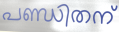
പണ്ഡിതന്